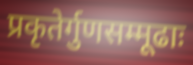
प्रकृतेर्गुणसम्मूढाः